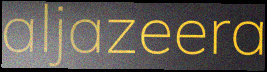
aljazeera